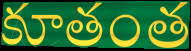
కూతంత